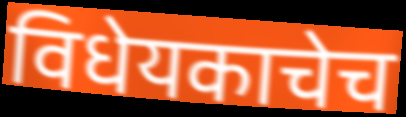
विधेयकाचेच